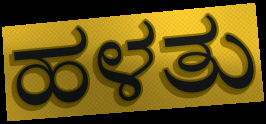
ಹಳತು